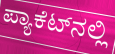
ಪ್ಯಾಕೆಟ್‌ನಲ್ಲಿ